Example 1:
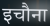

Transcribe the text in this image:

इचौना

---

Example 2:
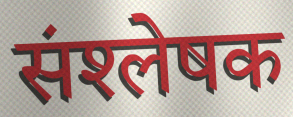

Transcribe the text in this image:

संश्लेषक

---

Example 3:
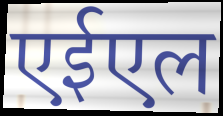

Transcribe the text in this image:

एईएल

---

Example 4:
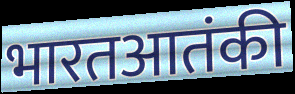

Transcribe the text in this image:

भारतआतंकी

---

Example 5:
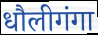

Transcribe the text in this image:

धौलीगंगा